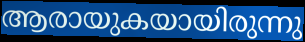
ആരായുകയായിരുന്നു